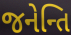
જનેન્તિ